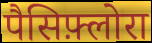
पैसिफ़्लोरा